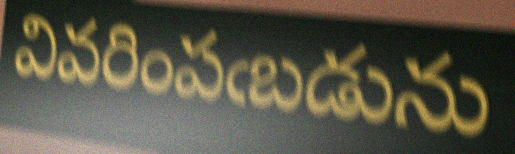
వివరింపఁబడును